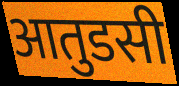
आतुडसी